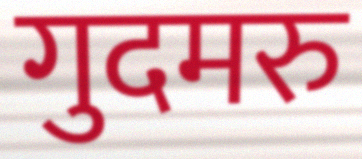
गुदमरु